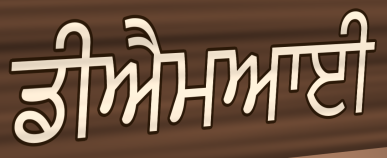
ਡੀਐਮਆਈ